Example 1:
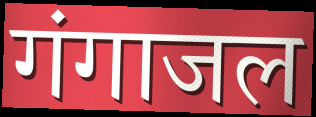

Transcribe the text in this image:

गंगाजल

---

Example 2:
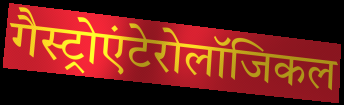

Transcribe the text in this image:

गैस्ट्रोएंटेरोलॉजिकल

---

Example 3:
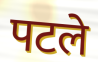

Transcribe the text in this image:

पटले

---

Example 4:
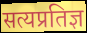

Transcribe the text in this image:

सत्यप्रतिज्ञ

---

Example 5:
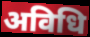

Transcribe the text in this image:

अविधि